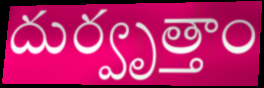
దుర్వృత్తాం